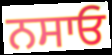
ਨਸਾਓ